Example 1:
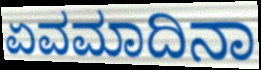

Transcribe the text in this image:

ಏವಮಾದಿನಾ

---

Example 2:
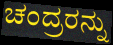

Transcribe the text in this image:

ಚಂದ್ರರನ್ನು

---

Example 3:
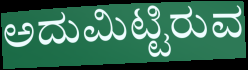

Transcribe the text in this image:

ಅದುಮಿಟ್ಟಿರುವ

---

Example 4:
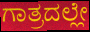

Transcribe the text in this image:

ಗಾತ್ರದಲ್ಲೇ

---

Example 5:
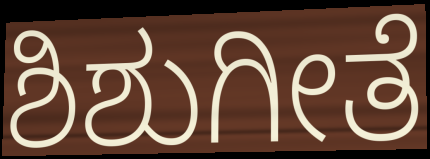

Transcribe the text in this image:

ಶಿಶುಗೀತೆ